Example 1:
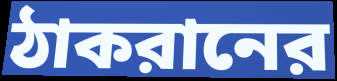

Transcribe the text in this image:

ঠাকরানের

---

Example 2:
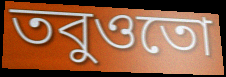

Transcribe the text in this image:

তবুওতো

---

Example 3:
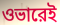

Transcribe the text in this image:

ওভারেই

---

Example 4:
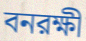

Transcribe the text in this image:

বনরক্ষী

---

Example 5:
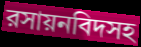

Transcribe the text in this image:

রসায়নবিদসহ